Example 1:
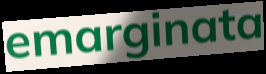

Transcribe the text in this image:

emarginata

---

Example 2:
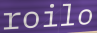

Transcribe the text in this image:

roilo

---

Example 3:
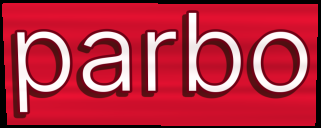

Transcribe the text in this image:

parbo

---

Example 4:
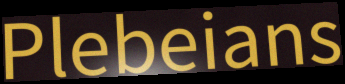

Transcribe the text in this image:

Plebeians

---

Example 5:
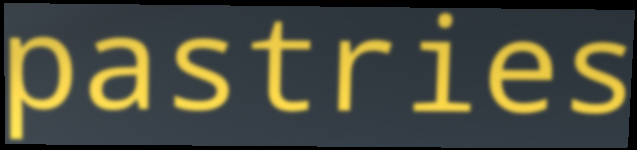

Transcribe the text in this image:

pastries